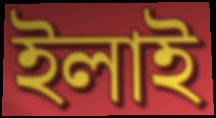
ইলাই